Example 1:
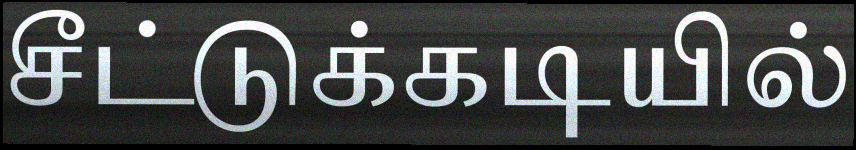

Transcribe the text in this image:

சீட்டுக்கடியில்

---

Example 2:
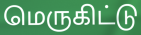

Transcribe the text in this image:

மெருகிட்டு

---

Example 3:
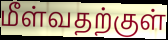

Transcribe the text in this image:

மீள்வதற்குள்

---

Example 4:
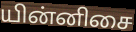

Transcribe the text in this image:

யின்னிசை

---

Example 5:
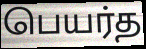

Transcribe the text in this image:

பெயர்த